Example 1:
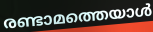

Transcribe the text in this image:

രണ്ടാമത്തെയാൾ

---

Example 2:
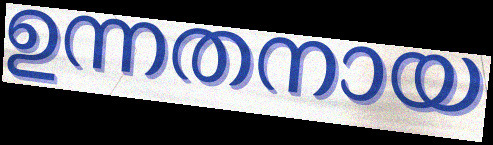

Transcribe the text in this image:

ഉന്നതനായ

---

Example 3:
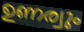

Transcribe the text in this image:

ഉണര്വും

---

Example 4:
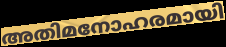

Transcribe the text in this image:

അതിമനോഹരമായി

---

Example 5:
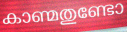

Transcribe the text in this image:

കാണ്മതുണ്ടോ